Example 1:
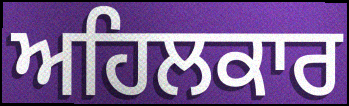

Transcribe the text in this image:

ਅਹਿਲਕਾਰ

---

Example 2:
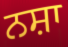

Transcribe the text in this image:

ਨਸ਼ਾ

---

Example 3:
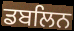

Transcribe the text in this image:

ਡਬਲਿਨ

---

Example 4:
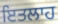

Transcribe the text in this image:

ਇਤਲਾਹ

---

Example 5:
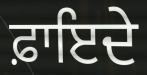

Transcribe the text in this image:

ਫ਼ਾਇਦੇ